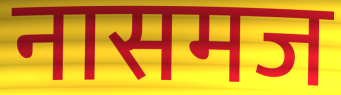
नासमज